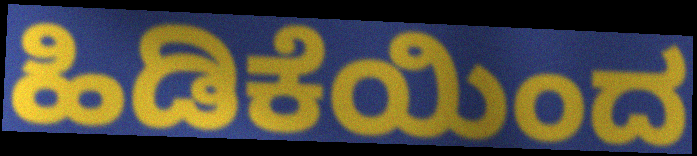
ಹಿಡಿಕೆಯಿಂದ